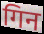
गिन